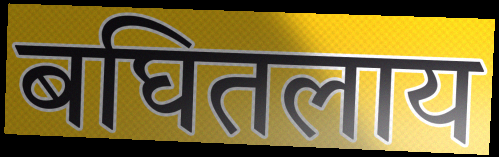
बघितलाय